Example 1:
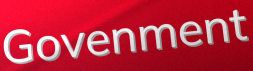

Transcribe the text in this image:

Govenment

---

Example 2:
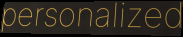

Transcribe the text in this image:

personalized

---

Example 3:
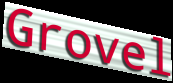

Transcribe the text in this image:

Grovel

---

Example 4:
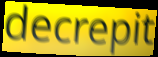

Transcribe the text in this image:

decrepit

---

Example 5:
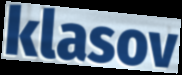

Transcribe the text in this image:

klasov